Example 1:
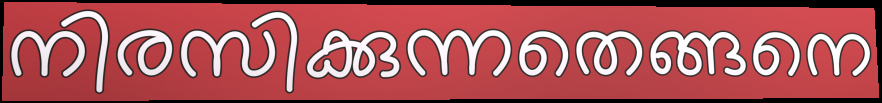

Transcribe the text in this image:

നിരസിക്കുന്നതെങ്ങനെ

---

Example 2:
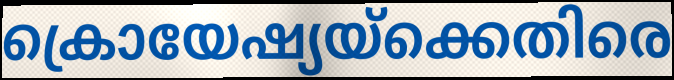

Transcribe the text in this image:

ക്രൊയേഷ്യയ്ക്കെതിരെ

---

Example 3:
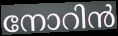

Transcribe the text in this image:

നോറിൻ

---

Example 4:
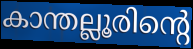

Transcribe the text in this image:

കാന്തല്ലൂരിന്റെ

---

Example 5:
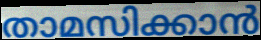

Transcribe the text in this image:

താമസിക്കാൻ